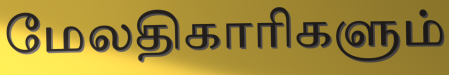
மேலதிகாரிகளும்